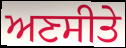
ਅਣਸੀਤੇ